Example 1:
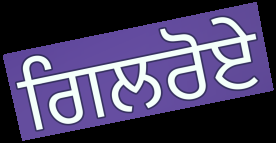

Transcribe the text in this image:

ਗਿਲਰੋਏ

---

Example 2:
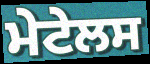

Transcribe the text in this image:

ਮੇਟੇਲਸ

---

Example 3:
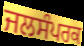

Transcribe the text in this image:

ਜਲਸੰਪਰਕ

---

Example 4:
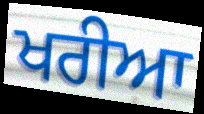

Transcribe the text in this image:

ਖਰੀਆ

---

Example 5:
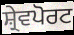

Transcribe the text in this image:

ਸ਼੍ਰੇਵਪੋਰਟ